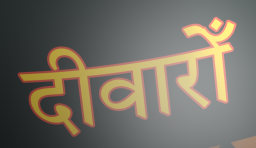
दीवारोँ